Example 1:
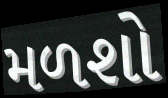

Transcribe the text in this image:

મળશો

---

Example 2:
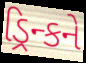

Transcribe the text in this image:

ડ્રિન્કને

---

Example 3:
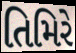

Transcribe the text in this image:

તિમિરે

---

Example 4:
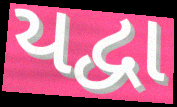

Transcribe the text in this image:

યદ્વા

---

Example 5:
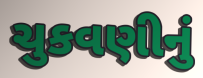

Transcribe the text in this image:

ચુકવણીનું